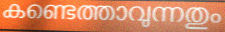
കണ്ടെത്താവുന്നതും